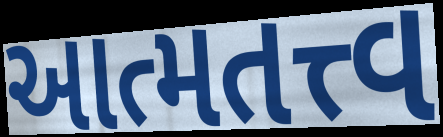
આત્મતત્ત્વ